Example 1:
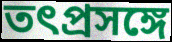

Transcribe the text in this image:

তৎপ্রসঙ্গে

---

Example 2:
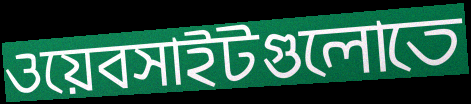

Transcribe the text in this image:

ওয়েবসাইটগুলোতে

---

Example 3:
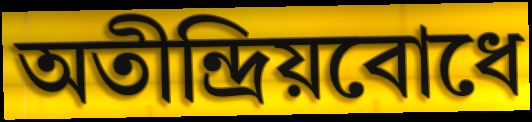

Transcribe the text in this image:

অতীন্দ্রিয়বোধে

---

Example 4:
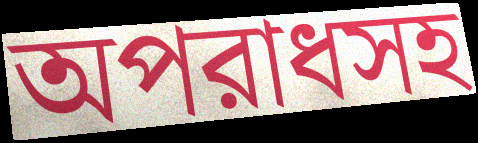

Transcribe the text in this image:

অপরাধসহ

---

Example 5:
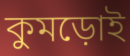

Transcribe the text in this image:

কুমড়োই